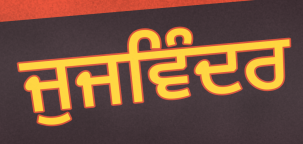
ਜੁਜਵਿੰਦਰ